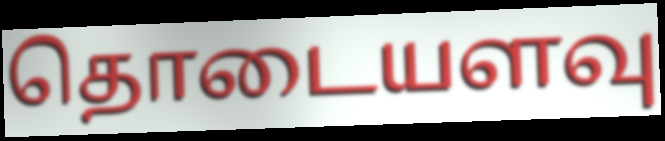
தொடையளவு